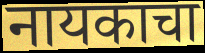
नायकाचा